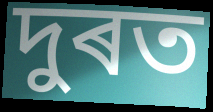
দুৰত